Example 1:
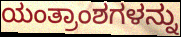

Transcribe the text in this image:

ಯಂತ್ರಾಂಶಗಳನ್ನು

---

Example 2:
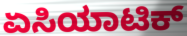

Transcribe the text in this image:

ಏಸಿಯಾಟಿಕ್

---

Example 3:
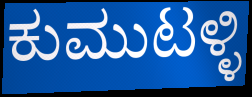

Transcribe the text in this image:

ಕುಮುಟಳ್ಳಿ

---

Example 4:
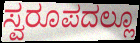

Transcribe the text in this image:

ಸ್ವರೂಪದಲ್ಲೂ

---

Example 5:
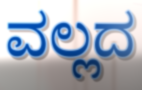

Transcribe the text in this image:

ವಲ್ಲದ